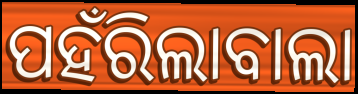
ପହଁରିଲାବାଲା